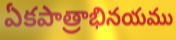
ఏకపాత్రాభినయము